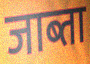
जाब्ता